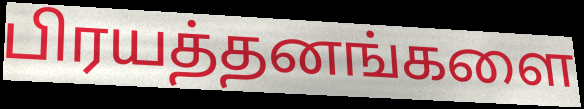
பிரயத்தனங்களை